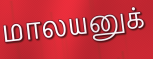
மாலயனுக்